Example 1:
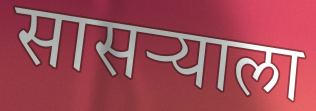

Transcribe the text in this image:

सासऱ्याला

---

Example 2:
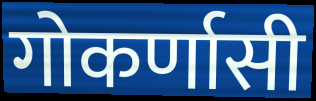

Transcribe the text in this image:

गोकर्णासी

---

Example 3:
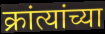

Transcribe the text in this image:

क्रांत्यांच्या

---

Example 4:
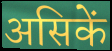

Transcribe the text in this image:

असिकें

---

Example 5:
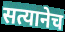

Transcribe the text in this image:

सत्यानेच